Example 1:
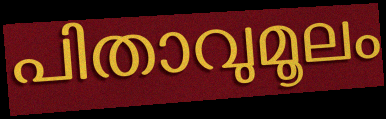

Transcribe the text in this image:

പിതാവുമൂലം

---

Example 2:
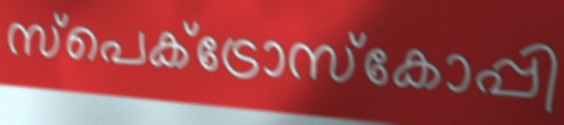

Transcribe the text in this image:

സ്പെക്ട്രോസ്കോപ്പി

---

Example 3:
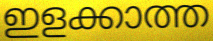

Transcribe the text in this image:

ഇളക്കാത്ത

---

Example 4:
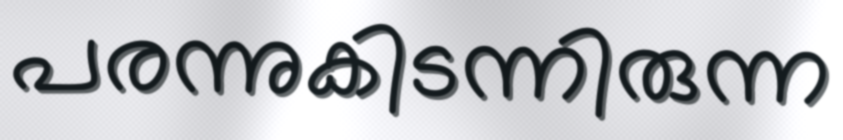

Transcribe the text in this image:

പരന്നുകിടന്നിരുന്ന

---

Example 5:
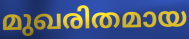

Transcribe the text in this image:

മുഖരിതമായ